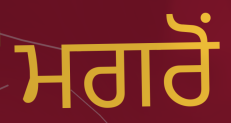
ਮਗਰੋਂ